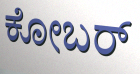
ಕೋಬರ್